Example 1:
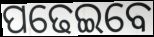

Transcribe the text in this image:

ପଢେଇବେ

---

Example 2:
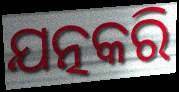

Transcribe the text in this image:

ଯତ୍ନକରି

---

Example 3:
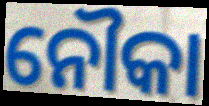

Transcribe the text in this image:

ନୌକା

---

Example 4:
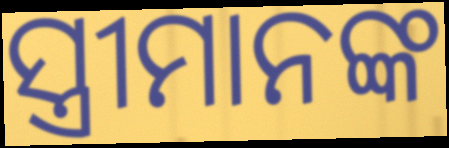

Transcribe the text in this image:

ସ୍ତ୍ରୀମାନଙ୍କ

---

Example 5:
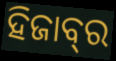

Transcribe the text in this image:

ହିଜାବ୍‌ର